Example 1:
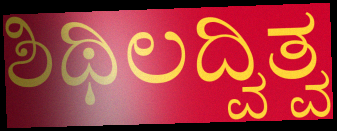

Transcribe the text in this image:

ಶಿಥಿಲದ್ವಿತ್ವ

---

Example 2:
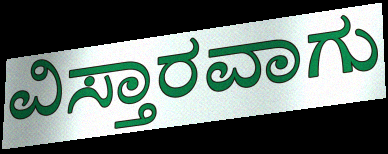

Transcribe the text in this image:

ವಿಸ್ತಾರವಾಗು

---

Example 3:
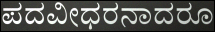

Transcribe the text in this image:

ಪದವೀಧರನಾದರೂ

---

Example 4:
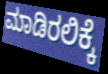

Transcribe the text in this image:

ಮಾಡಿರಲಿಕ್ಕೆ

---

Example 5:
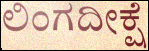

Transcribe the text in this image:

ಲಿಂಗದೀಕ್ಷೆ